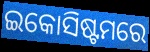
ଇକୋସିଷ୍ଟମରେ